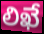
లిఖే